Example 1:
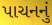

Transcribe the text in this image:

પાચનનું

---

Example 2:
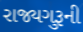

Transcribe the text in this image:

રાજ્યગુરૂની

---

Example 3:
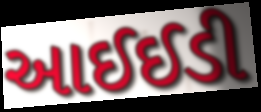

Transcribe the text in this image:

આઈઈડી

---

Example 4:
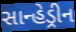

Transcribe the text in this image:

સાન્હેડ્રીન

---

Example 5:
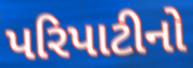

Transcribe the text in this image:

પરિપાટીનો